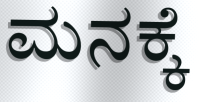
ಮನಕ್ಕೆ